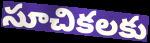
సూచికలకు